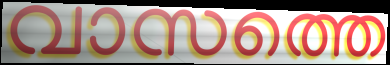
വാസത്തെ